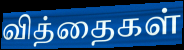
வித்தைகள்